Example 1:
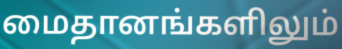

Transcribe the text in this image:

மைதானங்களிலும்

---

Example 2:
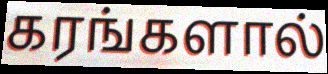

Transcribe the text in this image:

கரங்களால்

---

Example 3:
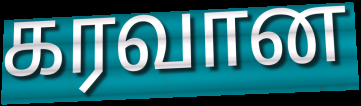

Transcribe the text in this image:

கரவான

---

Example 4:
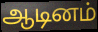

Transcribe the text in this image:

ஆடினம்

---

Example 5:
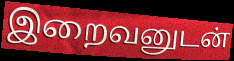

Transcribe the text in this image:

இறைவனுடன்